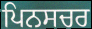
ਪਿਨਸਚਰ